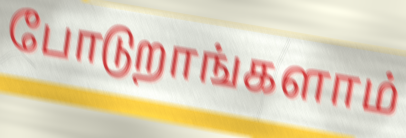
போடுறாங்களாம்